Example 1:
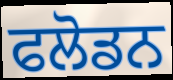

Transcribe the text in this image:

ਫਲੋਡਨ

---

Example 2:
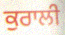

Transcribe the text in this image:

ਕੁਰਾਲੀ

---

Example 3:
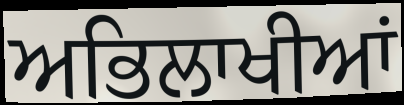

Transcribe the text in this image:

ਅਭਿਲਾਖੀਆਂ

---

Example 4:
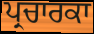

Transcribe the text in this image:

ਪ੍ਰਚਾਰਕਾ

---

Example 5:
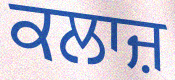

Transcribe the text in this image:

ਕਲਾਜ਼